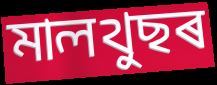
মালথুছৰ